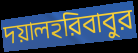
দয়ালহরিবাবুর